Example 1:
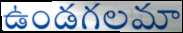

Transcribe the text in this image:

ఉండగలమా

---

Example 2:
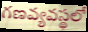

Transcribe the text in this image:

గణవ్యవస్థలో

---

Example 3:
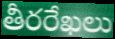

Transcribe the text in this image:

తీరరేఖలు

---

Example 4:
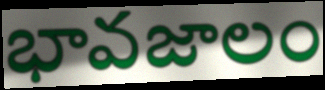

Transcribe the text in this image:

భావజాలం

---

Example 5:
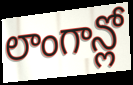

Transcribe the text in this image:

లాంగాన్లో